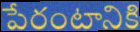
పేరంటానికి